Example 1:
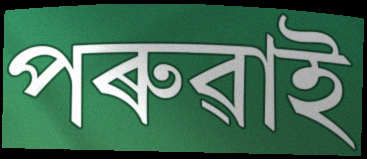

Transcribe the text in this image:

পৰুৱাই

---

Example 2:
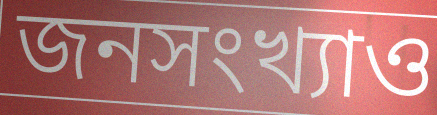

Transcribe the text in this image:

জনসংখ্যাও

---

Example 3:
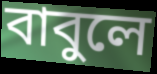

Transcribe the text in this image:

বাবুলে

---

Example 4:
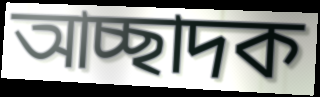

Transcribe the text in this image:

আচ্ছাদক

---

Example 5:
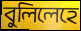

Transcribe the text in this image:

বুলিলেহে